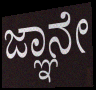
ಜ್ಞಾನೇ